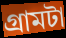
গ্রামটা